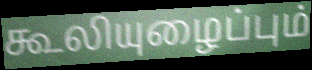
கூலியுழைப்பும்